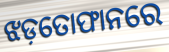
ଝଡ଼ତୋଫାନରେ